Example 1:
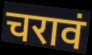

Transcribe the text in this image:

चरावं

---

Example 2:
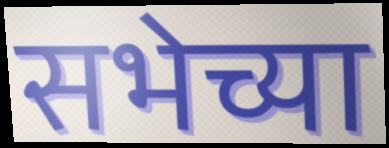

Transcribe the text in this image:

सभेच्या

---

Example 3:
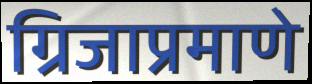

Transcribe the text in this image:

ग्रिजाप्रमाणे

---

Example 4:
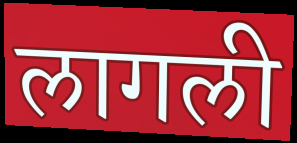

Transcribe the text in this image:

लागली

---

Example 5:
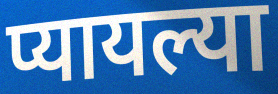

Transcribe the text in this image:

प्यायल्या